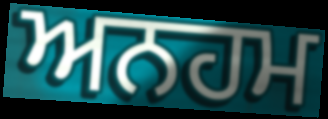
ਅਨਹਮ